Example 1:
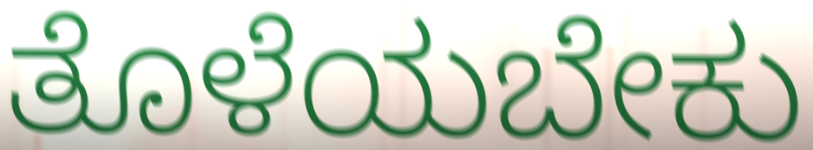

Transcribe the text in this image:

ತೊಳೆಯಬೇಕು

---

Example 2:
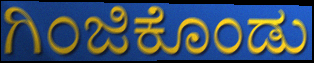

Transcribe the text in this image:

ಗಿಂಜಿಕೊಂಡು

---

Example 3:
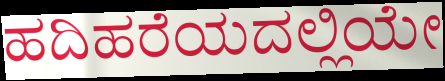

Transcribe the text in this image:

ಹದಿಹರೆಯದಲ್ಲಿಯೇ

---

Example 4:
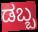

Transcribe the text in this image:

ಡಬ್ಬ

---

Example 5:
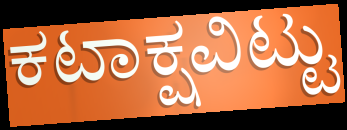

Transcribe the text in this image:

ಕಟಾಕ್ಷವಿಟ್ಟು